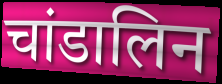
चांडालिन